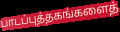
பாடப்புத்தகங்களைத்